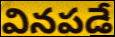
వినపడే